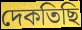
দেকতিছি